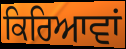
ਕਿਰਿਆਵਾਂ